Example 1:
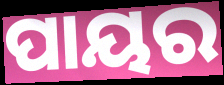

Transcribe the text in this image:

ପାୟର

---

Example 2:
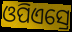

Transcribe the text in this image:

ଓପିଏସ୍ରେ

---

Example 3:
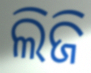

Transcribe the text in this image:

ଲିଜି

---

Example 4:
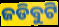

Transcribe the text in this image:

ଜଡିବୁଟି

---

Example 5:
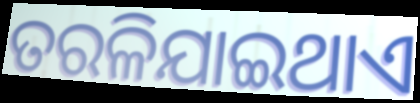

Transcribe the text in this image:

ତରଳିଯାଇଥାଏ